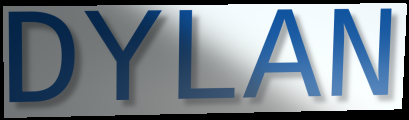
DYLAN